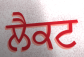
ਲੈਕਟ